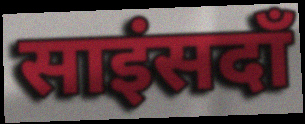
साइंसदाँ